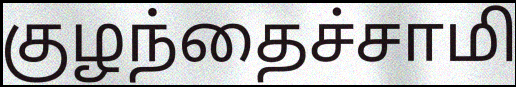
குழந்தைச்சாமி